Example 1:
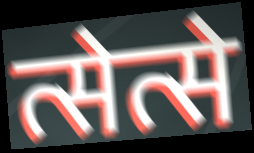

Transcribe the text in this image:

त्सेत्से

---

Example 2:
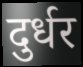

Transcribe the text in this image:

दुर्धर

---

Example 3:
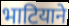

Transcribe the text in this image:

भाटियाने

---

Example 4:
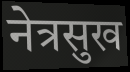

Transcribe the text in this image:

नेत्रसुख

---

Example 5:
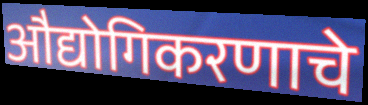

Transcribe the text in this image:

औद्योगिकरणाचे